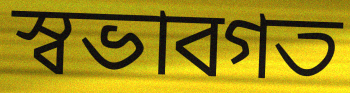
স্বভাবগত